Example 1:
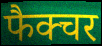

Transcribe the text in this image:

फैक्चर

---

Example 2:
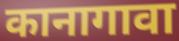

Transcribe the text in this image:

कानागावा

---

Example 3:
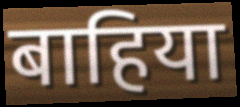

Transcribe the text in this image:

बाहिया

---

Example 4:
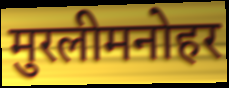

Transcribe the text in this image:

मुरलीमनोहर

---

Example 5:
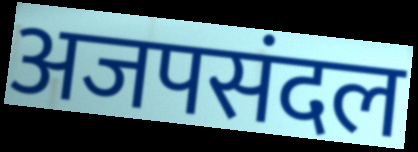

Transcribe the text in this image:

अजपसंदल